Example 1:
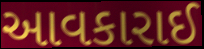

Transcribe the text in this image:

આવકારાઈ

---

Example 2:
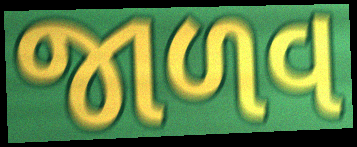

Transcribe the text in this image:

જાળવ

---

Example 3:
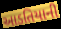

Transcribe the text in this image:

આડતિયાની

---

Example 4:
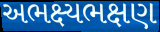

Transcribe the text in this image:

અભક્ષ્યભક્ષણ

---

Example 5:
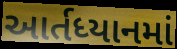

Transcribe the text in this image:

આર્તધ્યાનમાં